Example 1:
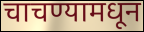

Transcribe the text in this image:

चाचण्यामधून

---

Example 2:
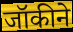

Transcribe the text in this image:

जॉकीने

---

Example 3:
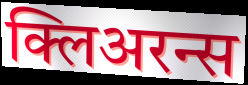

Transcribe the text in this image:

क्लिअरन्स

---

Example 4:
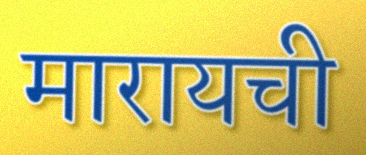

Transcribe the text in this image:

मारायची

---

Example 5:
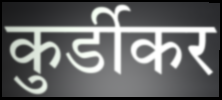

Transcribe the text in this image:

कुर्डीकर